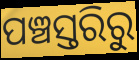
ପଞ୍ଚସ୍ତରିରୁ